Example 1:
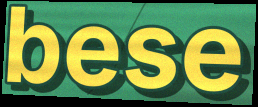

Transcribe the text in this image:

bese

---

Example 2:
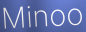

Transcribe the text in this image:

Minoo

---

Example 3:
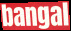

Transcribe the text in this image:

bangal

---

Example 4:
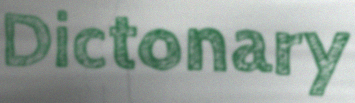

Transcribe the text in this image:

Dictonary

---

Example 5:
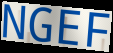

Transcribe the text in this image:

NGEF